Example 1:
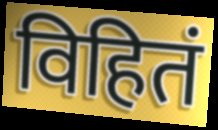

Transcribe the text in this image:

विहितं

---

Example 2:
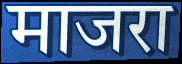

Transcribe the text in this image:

माजरा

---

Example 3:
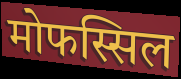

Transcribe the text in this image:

मोफस्सिल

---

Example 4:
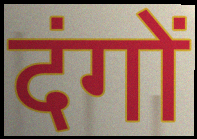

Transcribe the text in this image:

दंगों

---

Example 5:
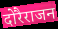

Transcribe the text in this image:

दोरैराजन